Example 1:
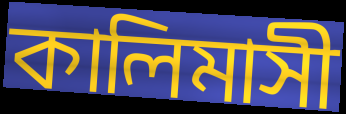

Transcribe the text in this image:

কালিমাসী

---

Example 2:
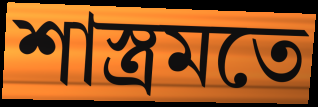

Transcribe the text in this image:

শাস্ত্রমতে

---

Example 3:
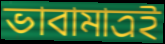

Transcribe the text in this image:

ভাবামাত্রই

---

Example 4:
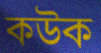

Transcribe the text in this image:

কউক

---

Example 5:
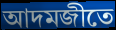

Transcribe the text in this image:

আদমজীতে